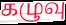
கழுவு